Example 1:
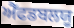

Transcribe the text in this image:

ਐੱਫਡਬਲਯੂ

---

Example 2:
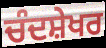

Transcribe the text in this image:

ਚੰਦਸ਼ੇਖਰ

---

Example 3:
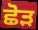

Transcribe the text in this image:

ਛੋੜ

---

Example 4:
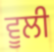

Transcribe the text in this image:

ਵੂਲੀ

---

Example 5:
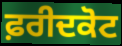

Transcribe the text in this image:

ਫ਼ਰੀਦਕੋਟ